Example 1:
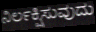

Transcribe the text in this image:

ನಿರ್ಲಕ್ಷಿಸುವುದು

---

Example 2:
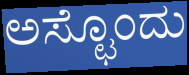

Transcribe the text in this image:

ಅಸ್ಟೊಂದು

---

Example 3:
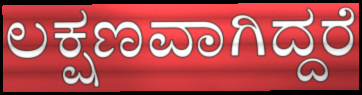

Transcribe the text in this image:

ಲಕ್ಷಣವಾಗಿದ್ದರೆ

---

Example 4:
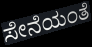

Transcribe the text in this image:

ಸೇನೆಯಂತೆ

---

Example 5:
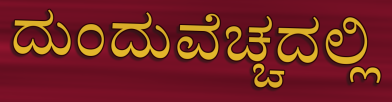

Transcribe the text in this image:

ದುಂದುವೆಚ್ಚದಲ್ಲಿ